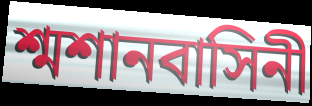
শ্মশানবাসিনী